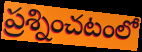
ప్రశ్నించటంలో